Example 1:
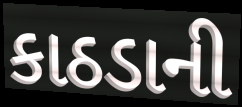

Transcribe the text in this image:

કાઠડાની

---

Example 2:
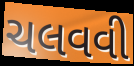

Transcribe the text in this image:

ચલવવી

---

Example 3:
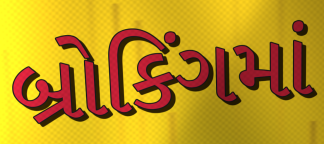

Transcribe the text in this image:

બ્રોકિંગમાં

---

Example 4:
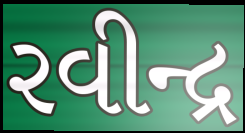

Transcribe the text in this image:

રવીન્દ્ર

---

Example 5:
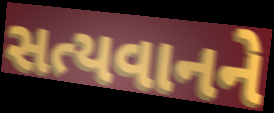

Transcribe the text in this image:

સત્યવાનને